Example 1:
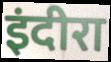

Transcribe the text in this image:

इंदीरा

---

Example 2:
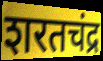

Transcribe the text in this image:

शरतचंद्र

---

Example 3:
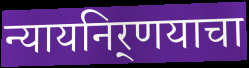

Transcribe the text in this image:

न्यायनिर्णयाचा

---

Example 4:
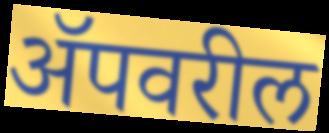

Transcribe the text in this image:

ॲपवरील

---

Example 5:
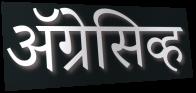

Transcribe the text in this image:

ॲग्रेसिव्ह